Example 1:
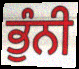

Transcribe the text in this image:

ਭੁੰਨੀ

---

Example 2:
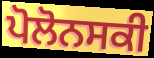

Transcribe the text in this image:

ਪੋਲੋਨਸਕੀ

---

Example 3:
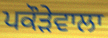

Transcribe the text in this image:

ਪਕੌੜੇਵਾਲਾ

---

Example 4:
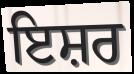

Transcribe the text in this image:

ਇਸ਼ਰ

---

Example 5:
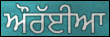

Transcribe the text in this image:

ਔਰੱਈਆ